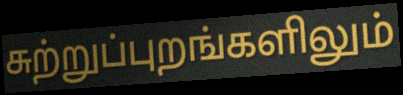
சுற்றுப்புறங்களிலும்